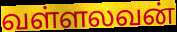
வள்ளலவன்